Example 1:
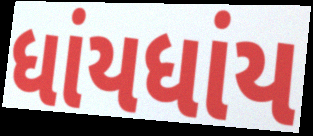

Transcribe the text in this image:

ધાંયધાંય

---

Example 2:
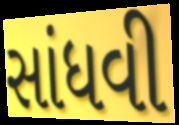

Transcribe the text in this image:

સાંધવી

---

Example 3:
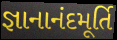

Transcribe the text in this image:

જ્ઞાનાનંદમૂર્તિ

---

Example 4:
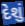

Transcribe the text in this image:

દેશું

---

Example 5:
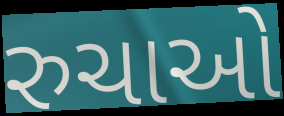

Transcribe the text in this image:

રુચાઓ